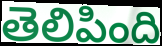
తెలిపింది